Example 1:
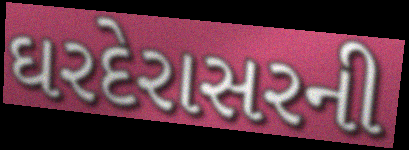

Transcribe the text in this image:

ઘરદેરાસરની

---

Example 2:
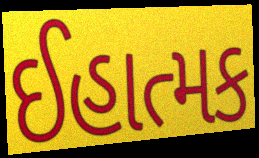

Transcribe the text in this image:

ઈહાત્મક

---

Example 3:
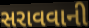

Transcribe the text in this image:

સરાવવાની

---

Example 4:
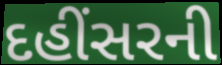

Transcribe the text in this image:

દહીંસરની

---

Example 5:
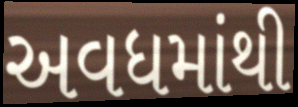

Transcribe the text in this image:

અવધમાંથી